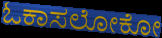
ಓಕಾಸಲೋಕೋ